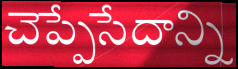
చెప్పేసేదాన్ని